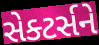
સેક્ટર્સને